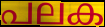
പലക